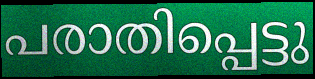
പരാതിപ്പെട്ടു